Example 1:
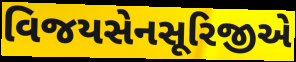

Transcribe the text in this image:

વિજયસેનસૂરિજીએ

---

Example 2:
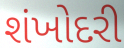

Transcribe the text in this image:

શંખોદરી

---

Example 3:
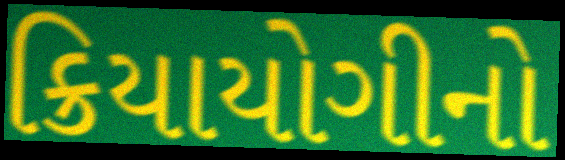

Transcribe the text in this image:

ક્રિયાયોગીનો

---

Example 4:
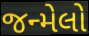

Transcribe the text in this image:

જન્મેલો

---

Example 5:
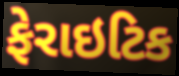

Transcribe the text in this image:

ફેરાઇટિક